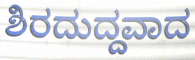
ಶಿರದುದ್ದವಾದ